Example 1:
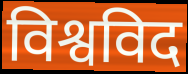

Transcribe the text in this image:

विश्वविद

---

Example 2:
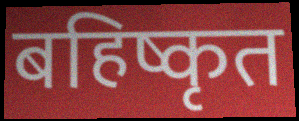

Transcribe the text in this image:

बहिष्कृत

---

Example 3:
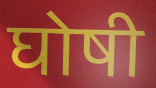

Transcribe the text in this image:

घोषी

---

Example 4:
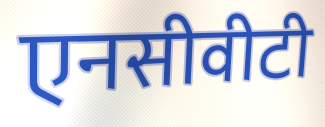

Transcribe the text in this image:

एनसीवीटी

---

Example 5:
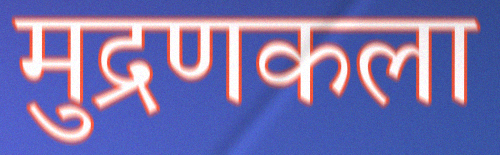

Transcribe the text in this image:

मुद्रणकला